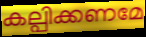
കല്പിക്കണമേ